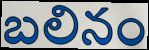
బలినం